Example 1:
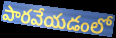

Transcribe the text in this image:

పారవేయడంలో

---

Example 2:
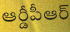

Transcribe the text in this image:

ఆర్డీపీఆర్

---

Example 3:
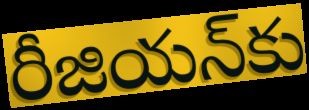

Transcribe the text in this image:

రీజియన్‌కు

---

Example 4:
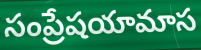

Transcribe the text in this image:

సంప్రేషయామాస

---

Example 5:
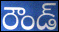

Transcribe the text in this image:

రౌండ్